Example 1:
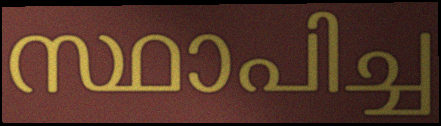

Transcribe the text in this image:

സ്ഥാപിച്ച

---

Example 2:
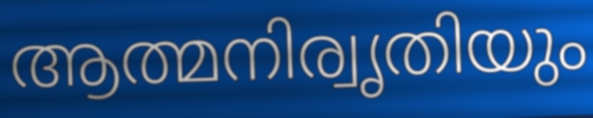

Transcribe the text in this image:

ആത്മനിര്വൃതിയും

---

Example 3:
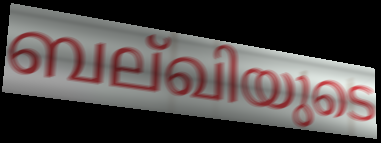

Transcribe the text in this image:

ബല്ഖിയുടെ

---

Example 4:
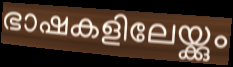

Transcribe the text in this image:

ഭാഷകളിലേയ്ക്കും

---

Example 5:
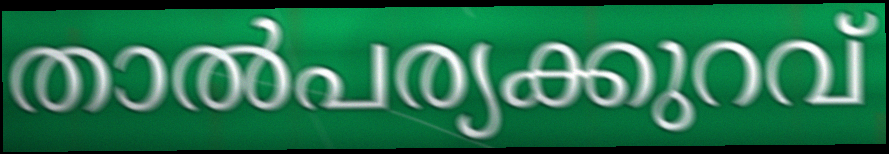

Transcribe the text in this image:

താൽപര്യക്കുറവ്